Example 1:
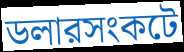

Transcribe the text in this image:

ডলারসংকটে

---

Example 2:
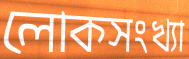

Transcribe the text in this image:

লোকসংখ্যা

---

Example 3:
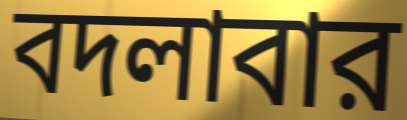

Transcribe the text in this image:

বদলাবার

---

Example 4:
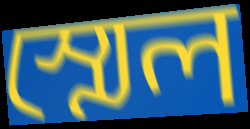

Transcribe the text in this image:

স্মেল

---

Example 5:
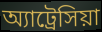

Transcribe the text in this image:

অ্যাট্রেসিয়া